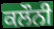
ਕਲੌਨੀ